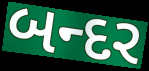
બન્દર